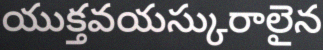
యుక్తవయస్కురాలైన